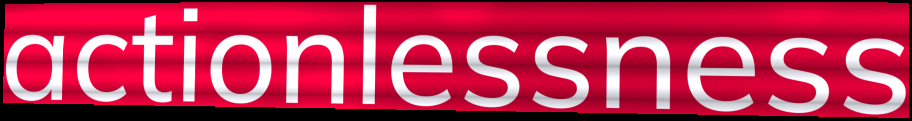
actionlessness